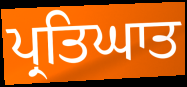
ਪ੍ਰਤਿਘਾਤ